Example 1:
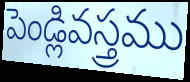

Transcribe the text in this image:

పెండ్లివస్త్రము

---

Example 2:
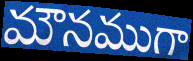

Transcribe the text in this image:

మౌనముగా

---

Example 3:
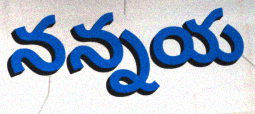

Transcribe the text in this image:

నన్నయ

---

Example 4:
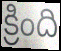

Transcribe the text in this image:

క్రింది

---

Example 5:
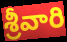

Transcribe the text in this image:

శ్రీవారి